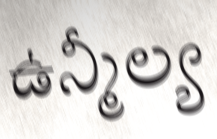
ఉన్మీల్య